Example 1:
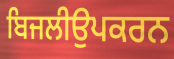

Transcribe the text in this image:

ਬਿਜਲੀਉਪਕਰਨ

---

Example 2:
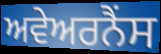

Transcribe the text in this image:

ਅਵੇਅਰਨੈਂਸ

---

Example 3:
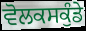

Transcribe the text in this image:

ਵੋਲਕਸਕੁੰਡੇ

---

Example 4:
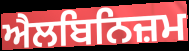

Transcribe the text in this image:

ਐਲਬਿਨਿਜ਼ਮ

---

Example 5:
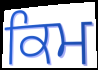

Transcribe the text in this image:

ਕਿਮ